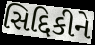
સિદ્દિકીને